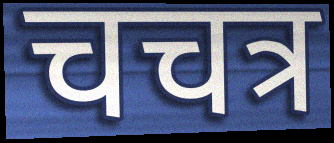
चचत्र